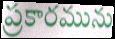
ప్రకారమును